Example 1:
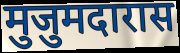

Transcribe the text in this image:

मुजुमदारास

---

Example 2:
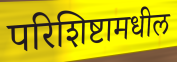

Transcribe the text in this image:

परिशिष्टामधील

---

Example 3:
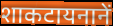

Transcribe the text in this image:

शाकटायनानें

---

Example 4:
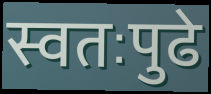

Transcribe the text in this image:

स्वतःपुढे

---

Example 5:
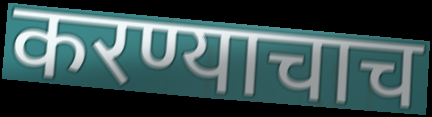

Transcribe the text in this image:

करण्याचाच